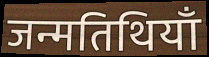
जन्मतिथियाँ